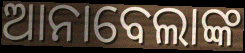
ଆନାବେଲାଙ୍କ